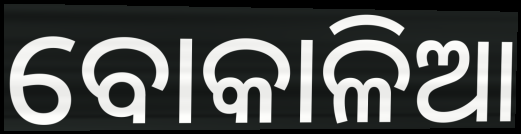
ବୋକାଳିଆ